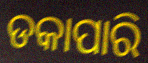
ଡକାପାରି